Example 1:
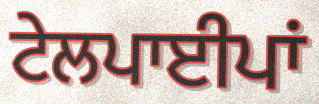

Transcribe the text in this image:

ਟੇਲਪਾਈਪਾਂ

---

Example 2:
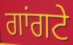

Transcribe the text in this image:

ਗਾਂਗਟੇ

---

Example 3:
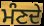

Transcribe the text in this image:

ਮੰਣਦੇ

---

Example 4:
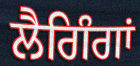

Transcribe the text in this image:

ਲੈਗਿੰਗਾਂ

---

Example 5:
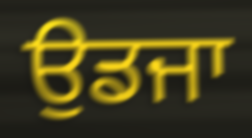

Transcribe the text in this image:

ਉਡਜਾ